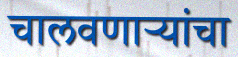
चालवणाऱ्यांचा